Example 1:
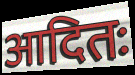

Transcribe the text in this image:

आदितः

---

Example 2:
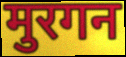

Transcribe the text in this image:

मुरगन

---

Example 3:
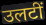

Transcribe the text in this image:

उलटीं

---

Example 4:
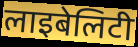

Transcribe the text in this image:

लाइबेलिटी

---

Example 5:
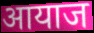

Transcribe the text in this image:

आयाज